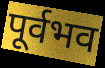
पूर्वभव